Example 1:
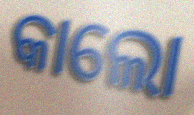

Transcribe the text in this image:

କାଲୋ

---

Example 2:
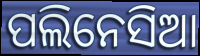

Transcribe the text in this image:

ପଲିନେସିଆ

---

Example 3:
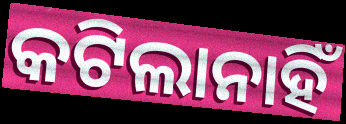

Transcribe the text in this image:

କଟିଲାନାହିଁ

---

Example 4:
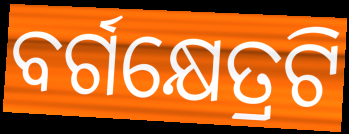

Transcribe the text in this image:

ବର୍ଗକ୍ଷେତ୍ରଟି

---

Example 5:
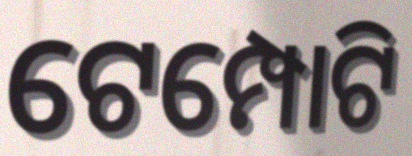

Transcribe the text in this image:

ଟେମ୍ପୋଟି